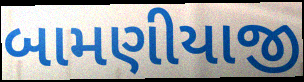
બામણીયાજી